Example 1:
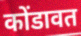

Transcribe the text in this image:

कोंडावत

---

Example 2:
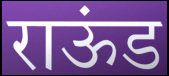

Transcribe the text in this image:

राऊंड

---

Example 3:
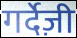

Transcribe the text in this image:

गर्देज़ी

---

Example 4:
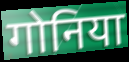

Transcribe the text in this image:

गोनिया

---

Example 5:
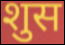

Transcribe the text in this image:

शुस